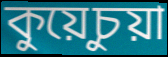
কুয়েচুয়া